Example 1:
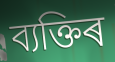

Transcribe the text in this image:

ব্যক্তিৰ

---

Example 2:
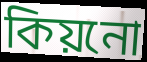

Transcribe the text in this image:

কিয়নো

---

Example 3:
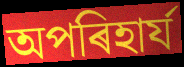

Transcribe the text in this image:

অপৰিহাৰ্য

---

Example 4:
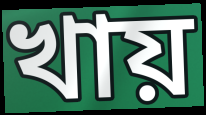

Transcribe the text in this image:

খায়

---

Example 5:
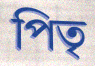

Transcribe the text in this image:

পিতৃ